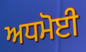
ਅਧਮੋਈ